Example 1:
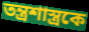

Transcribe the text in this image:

তন্ত্রশাস্ত্রকে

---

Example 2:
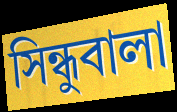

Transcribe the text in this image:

সিন্ধুবালা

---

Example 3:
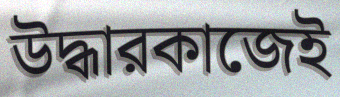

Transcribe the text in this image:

উদ্ধারকাজেই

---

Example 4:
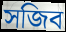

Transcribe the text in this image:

সজিব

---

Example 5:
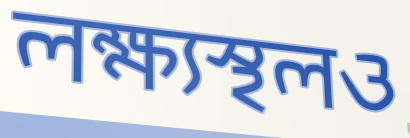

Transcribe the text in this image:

লক্ষ্যস্থলও